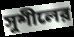
সুশীলের